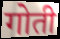
गोती